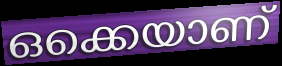
ഒക്കെയാണ്